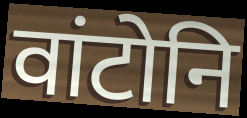
वांटोनि